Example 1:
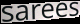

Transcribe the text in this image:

sarees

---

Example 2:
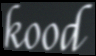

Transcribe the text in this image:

kood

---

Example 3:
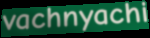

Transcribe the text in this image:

vachnyachi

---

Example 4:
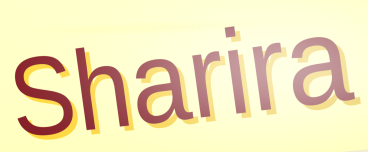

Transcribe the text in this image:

Sharira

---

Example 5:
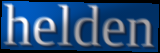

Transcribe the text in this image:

helden